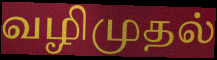
வழிமுதல்